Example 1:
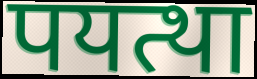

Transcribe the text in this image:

पयत्था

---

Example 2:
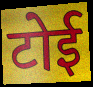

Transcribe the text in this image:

टोई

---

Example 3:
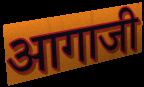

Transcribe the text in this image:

आगाजी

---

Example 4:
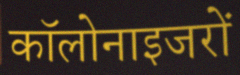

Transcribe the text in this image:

कॉलोनाइजरों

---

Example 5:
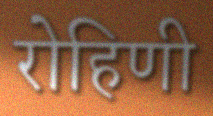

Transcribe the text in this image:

रोहिणी